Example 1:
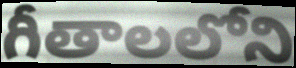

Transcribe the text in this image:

గీతాలలోని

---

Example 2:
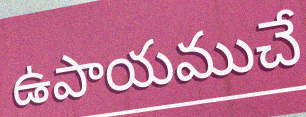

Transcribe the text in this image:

ఉపాయముచే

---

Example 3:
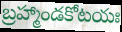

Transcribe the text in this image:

బ్రహ్మాండకోటయః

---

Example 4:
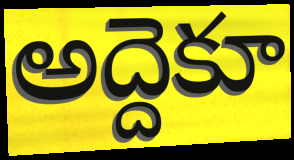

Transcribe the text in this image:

అద్దెకూ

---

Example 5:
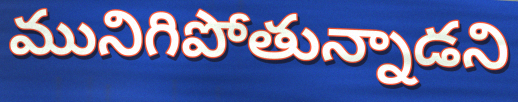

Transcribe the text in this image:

మునిగిపోతున్నాడని